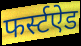
फर्स्टऐड